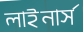
লাইনার্স